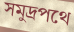
সমুদ্রপথে